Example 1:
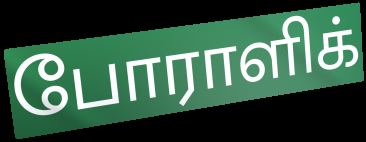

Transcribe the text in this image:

போராளிக்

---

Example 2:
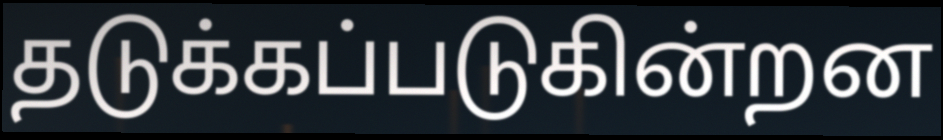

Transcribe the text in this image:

தடுக்கப்படுகின்றன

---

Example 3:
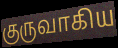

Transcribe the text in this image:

குருவாகிய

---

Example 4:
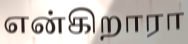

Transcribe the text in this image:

என்கிறாரா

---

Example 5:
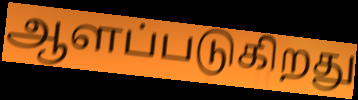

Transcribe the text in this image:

ஆளப்படுகிறது